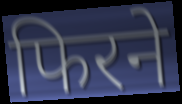
फिरने